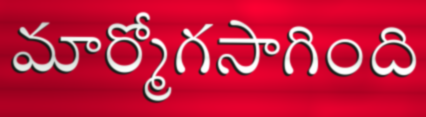
మార్మోగసాగింది